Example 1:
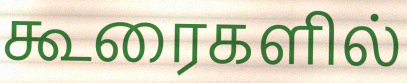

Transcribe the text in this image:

கூரைகளில்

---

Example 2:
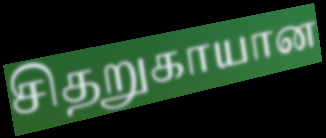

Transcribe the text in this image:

சிதறுகாயான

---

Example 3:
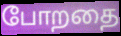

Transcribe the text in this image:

போறதை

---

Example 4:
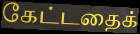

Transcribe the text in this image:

கேட்டதைக்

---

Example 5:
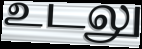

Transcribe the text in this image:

உடலு